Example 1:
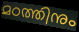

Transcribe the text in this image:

മഠത്തിനും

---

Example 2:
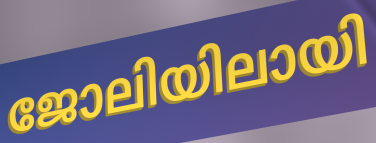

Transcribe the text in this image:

ജോലിയിലായി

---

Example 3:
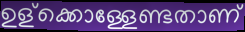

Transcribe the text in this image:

ഉള്ക്കൊള്ളേണ്ടതാണ്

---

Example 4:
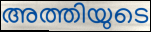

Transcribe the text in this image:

അത്തിയുടെ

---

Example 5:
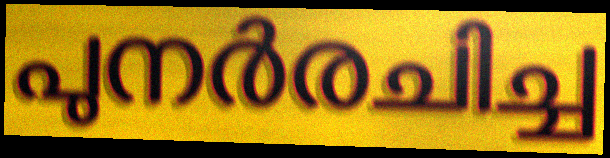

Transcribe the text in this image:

പുനർരചിച്ച